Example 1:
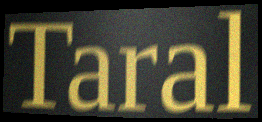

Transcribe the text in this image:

Taral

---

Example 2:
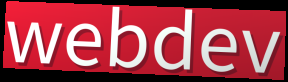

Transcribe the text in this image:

webdev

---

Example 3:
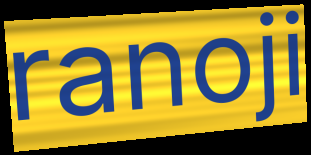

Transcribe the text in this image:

ranoji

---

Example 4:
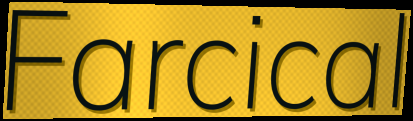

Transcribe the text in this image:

Farcical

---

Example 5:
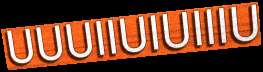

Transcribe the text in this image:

UUUIIUIUIIIU